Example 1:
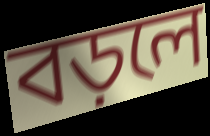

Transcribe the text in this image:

বড়লে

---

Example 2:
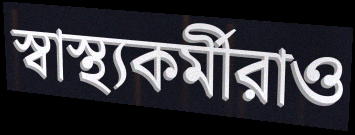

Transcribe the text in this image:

স্বাস্থ্যকর্মীরাও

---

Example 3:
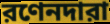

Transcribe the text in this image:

রণেনদারা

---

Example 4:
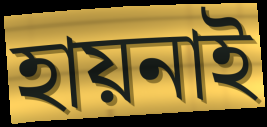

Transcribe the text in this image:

হায়নাই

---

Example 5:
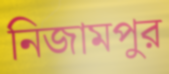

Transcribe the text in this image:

নিজামপুর